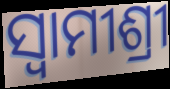
ସ୍ଵାମୀଶ୍ରୀ